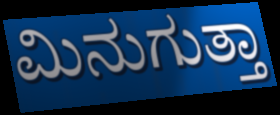
ಮಿನುಗುತ್ತಾ